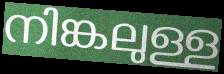
നിങ്കലുള്ള